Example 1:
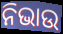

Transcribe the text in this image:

ନିଭାଉ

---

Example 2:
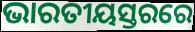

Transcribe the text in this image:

ଭାରତୀୟସ୍ତରରେ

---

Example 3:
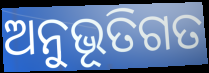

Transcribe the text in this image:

ଅନୁଭୂତିଗତ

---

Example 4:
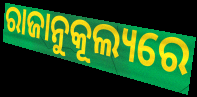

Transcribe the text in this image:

ରାଜାନୁକୂଲ୍ୟରେ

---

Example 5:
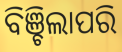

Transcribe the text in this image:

ବିଞ୍ଚିଲାପରି